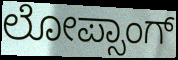
ಲೋಪ್ಸಾಂಗ್